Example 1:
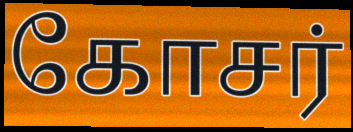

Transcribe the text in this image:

கோசர்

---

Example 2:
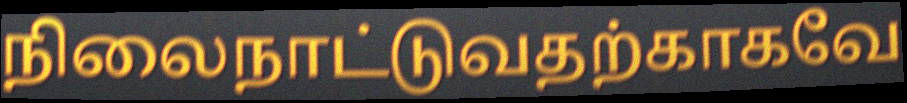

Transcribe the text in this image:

நிலைநாட்டுவதற்காகவே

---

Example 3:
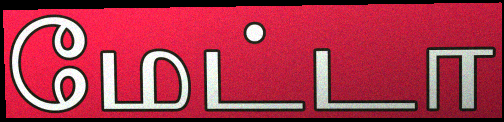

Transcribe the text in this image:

மேட்டா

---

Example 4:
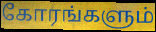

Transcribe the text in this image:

கோரங்களும்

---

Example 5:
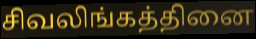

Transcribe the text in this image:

சிவலிங்கத்தினை